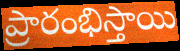
ప్రారంభిస్తాయి